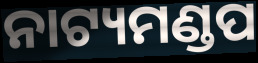
ନାଟ୍ୟମଣ୍ଡପ